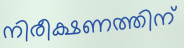
നിരീക്ഷണത്തിന്